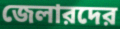
জেলারদের